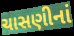
ચાસણીનાં